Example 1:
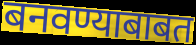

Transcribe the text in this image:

बनवण्याबाबत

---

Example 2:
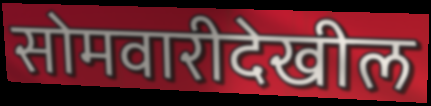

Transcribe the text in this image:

सोमवारीदेखील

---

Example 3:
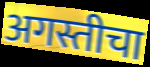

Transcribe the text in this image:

अगस्तीचा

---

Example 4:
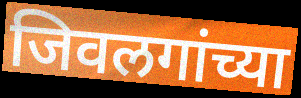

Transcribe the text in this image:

जिवलगांच्या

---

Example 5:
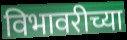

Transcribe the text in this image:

विभावरीच्या